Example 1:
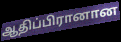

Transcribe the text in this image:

ஆதிப்பிரானான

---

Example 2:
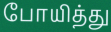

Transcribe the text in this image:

போயித்து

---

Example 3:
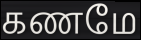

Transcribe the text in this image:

கணமே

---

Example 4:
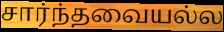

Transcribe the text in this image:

சார்ந்தவையல்ல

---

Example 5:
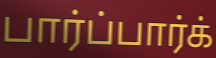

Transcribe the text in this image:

பார்ப்பார்க்